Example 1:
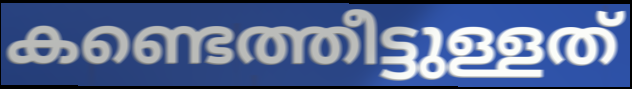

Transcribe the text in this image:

കണ്ടെത്തീട്ടുള്ളത്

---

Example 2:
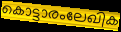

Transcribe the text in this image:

കൊട്ടാരംലേഖിക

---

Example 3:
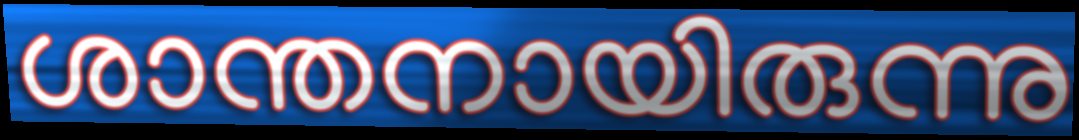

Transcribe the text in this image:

ശാന്തനായിരുന്നു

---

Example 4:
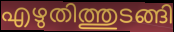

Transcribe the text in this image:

എഴുതിത്തുടങ്ങി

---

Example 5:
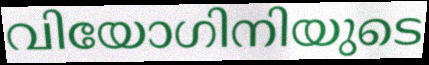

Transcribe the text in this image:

വിയോഗിനിയുടെ